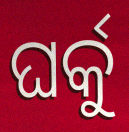
ଘର୍କୁ